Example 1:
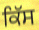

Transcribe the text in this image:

ਕਿੱਸ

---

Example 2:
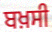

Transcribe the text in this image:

ਬਖ਼ਸੀ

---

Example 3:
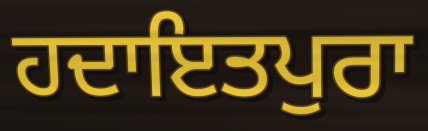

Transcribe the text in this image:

ਹਦਾਇਤਪੁਰਾ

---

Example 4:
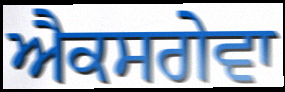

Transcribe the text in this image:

ਐਕਸਗੇਵਾ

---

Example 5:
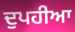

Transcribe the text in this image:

ਦੁਪਹੀਆ